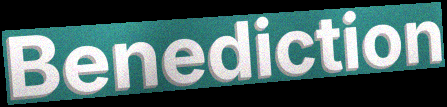
Benediction